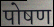
पोषण